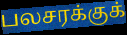
பலசரக்குக்